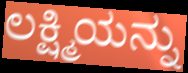
ಲಕ್ಷ್ಮಿಯನ್ನು